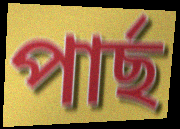
পাৰ্ছ